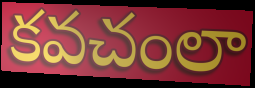
కవచంలా